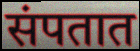
संपतात